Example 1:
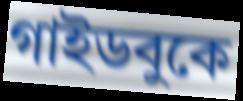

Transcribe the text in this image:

গাইডবুকে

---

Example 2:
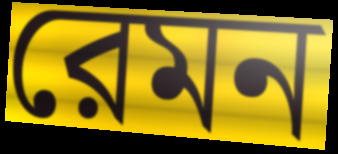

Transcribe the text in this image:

রেমন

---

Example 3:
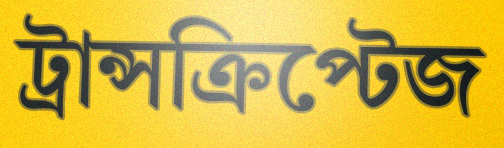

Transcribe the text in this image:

ট্রান্সক্রিপ্টেজ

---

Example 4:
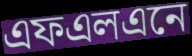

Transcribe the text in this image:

এফএলএনে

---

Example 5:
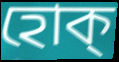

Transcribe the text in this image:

হোক্